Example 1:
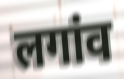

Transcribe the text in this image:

लगांव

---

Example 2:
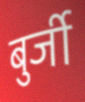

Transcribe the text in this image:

बुर्जी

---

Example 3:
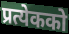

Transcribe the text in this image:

प्रत्येकको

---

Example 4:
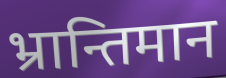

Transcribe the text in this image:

भ्रान्तिमान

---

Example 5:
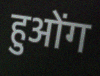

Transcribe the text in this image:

हुओंग